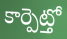
కార్పెట్తో